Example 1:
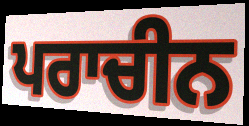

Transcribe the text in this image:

ਪਰਾਚੀਨ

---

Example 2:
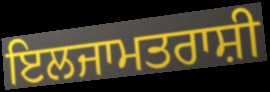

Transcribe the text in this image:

ਇਲਜਾਮਤਰਾਸ਼ੀ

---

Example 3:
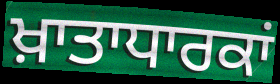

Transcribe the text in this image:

ਖ਼ਾਤਾਧਾਰਕਾਂ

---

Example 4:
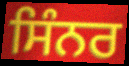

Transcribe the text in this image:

ਸਿੰਨਰ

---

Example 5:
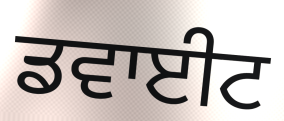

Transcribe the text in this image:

ਡਵਾਈਟ